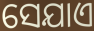
ସେଯାଏ